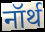
नॉर्थ